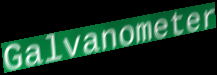
Galvanometer